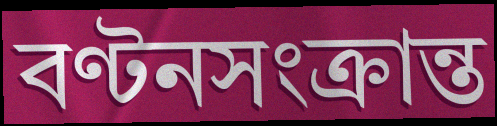
বণ্টনসংক্রান্ত